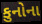
કુનોના